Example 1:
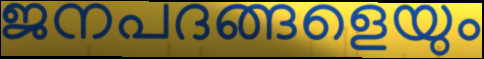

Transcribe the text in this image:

ജനപദങ്ങളെയും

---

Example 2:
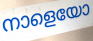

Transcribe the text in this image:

നാളെയോ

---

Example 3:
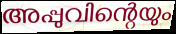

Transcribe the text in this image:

അപ്പുവിന്റെയും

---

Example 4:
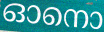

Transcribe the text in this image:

ഓനൊ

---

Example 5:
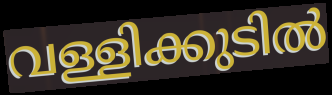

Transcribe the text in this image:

വള്ളിക്കുടിൽ